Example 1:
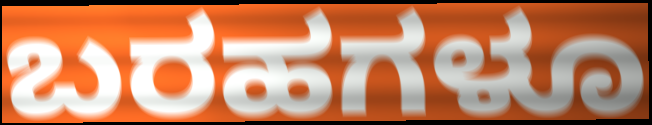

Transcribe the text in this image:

ಬರಹಗಳೂ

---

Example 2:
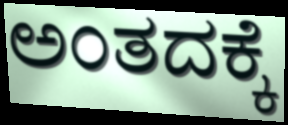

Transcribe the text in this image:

ಅಂತದಕ್ಕೆ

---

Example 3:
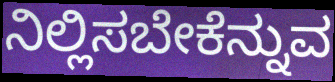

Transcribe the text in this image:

ನಿಲ್ಲಿಸಬೇಕೆನ್ನುವ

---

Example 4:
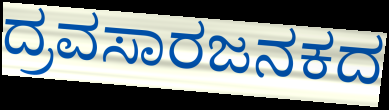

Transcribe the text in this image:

ದ್ರವಸಾರಜನಕದ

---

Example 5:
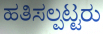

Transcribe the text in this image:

ಹತಿಸಲ್ಪಟ್ಟರು